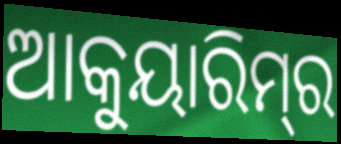
ଆକୁୟାରିମ୍‌ର